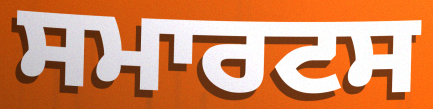
ਸਮਾਰਟਸ